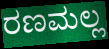
ರಣಮಲ್ಲ